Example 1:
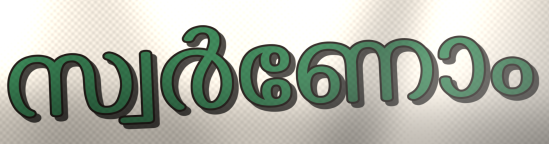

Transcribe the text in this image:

സ്വർണോം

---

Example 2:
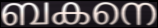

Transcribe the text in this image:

ബകനെ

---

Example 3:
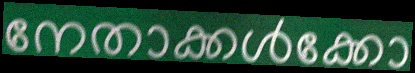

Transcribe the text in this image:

നേതാക്കൾക്കോ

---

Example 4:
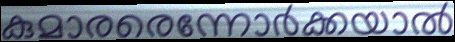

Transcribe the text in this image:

കുമാരരെന്നോർക്കയാൽ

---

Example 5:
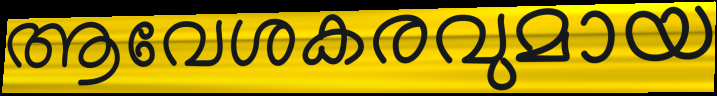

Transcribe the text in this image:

ആവേശകരവുമായ